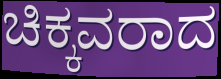
ಚಿಕ್ಕವರಾದ